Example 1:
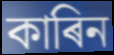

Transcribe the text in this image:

কাৰিন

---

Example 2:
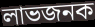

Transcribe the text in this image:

লাভজনক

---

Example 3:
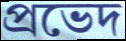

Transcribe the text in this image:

প্ৰভেদ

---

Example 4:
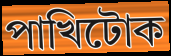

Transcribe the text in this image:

পাখিটোক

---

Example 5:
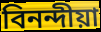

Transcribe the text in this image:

বিনন্দীয়া